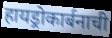
हायड्रोकार्बनाची